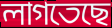
লাগতেছে